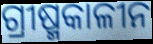
ଗ୍ରୀଷ୍ମକାଳୀନ